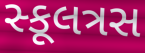
સ્કૂલત્રસ